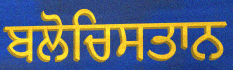
ਬਲੋਚਿਸਤਾਨ